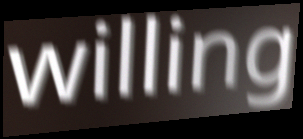
willing